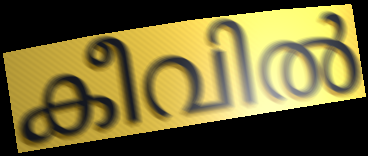
കീവിൽ